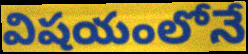
విషయంలోనే